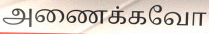
அணைக்கவோ